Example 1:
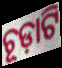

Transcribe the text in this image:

ଚୂଡ଼ାଟି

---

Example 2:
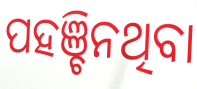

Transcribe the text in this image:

ପହଞ୍ଚିନଥିବା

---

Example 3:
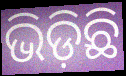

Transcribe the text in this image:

ଭିଡ଼ିଛି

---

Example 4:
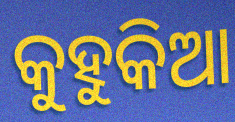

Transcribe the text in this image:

କୁହୁକିଆ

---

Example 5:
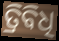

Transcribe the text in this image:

ତ୍ରିବିଧି